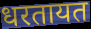
धरतायत